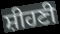
ਸ਼ੀਹਣੀ